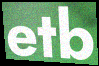
etb